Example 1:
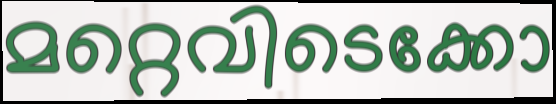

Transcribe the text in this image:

മറ്റെവിടെക്കോ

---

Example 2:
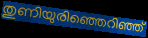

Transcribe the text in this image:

തുണിയുരിഞ്ഞെറിഞ്ഞ്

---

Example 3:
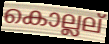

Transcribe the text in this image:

കൊല്ലല്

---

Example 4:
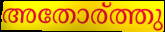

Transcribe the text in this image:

അതോര്ത്തു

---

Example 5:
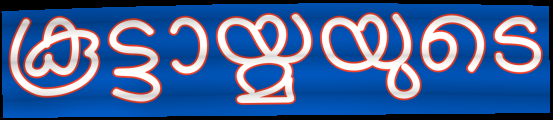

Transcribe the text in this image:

കൂട്ടായ്മയുടെ